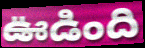
ఊడింది